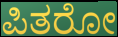
ಪಿತರೋ